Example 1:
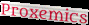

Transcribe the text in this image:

Proxemics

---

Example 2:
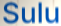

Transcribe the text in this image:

Sulu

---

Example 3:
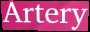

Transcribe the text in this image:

Artery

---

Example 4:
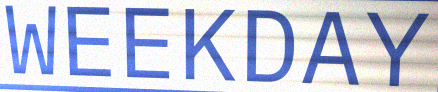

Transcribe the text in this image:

WEEKDAY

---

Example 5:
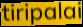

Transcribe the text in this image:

tiripalai